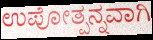
ಉಪೋತ್ಪನ್ನವಾಗಿ